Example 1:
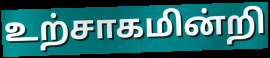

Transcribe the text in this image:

உற்சாகமின்றி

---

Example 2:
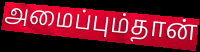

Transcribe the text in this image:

அமைப்பும்தான்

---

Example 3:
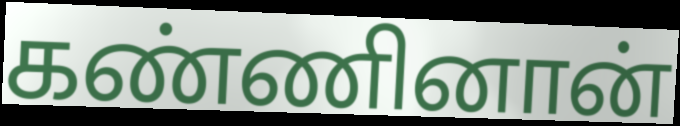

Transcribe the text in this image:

கண்ணினான்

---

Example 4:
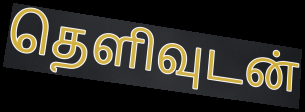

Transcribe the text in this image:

தெளிவுடன்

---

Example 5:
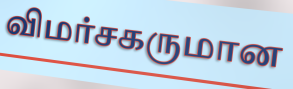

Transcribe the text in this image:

விமர்சகருமான